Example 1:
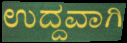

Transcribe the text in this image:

ಉದ್ದವಾಗಿ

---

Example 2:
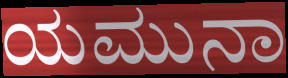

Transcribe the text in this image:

ಯಮುನಾ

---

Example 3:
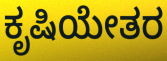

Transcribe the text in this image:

ಕೃಷಿಯೇತರ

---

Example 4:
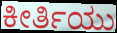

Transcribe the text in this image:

ಕೀರ್ತಿಯು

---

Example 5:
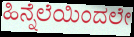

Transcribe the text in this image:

ಹಿನ್ನೆಲೆಯಿಂದಲೇ